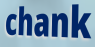
chank